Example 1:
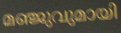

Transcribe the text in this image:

മഞ്ജുവുമായി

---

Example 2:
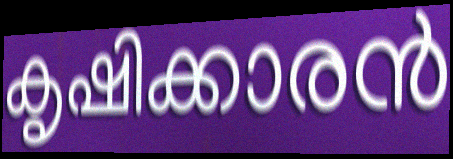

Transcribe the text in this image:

കൃഷിക്കാരൻ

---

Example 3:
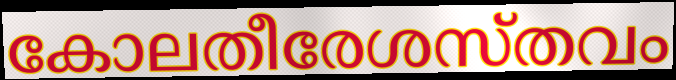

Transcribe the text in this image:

കോലതീരേശസ്തവം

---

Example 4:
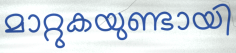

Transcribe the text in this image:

മാറ്റുകയുണ്ടായി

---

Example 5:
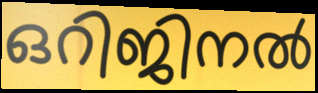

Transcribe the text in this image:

ഒറിജിനൽ